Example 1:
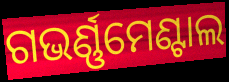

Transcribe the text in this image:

ଗଭର୍ଣ୍ଣମେଣ୍ଟାଲ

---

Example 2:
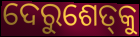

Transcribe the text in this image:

ଦେରୁଶେତ୍‌କୁ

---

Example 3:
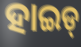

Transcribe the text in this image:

ହାଇଡ୍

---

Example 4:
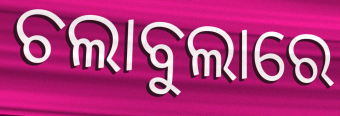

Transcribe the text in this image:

ଚଲାବୁଲାରେ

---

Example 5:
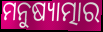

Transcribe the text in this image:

ମନୁଷ୍ୟାତ୍ମାର